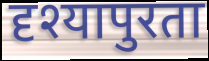
दृश्यापुरता